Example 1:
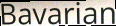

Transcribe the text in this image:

Bavarian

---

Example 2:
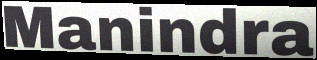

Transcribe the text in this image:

Manindra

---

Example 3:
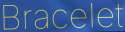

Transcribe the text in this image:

Bracelet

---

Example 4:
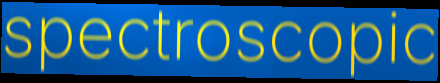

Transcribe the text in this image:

spectroscopic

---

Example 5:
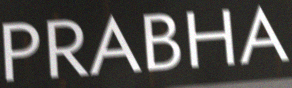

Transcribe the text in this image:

PRABHA